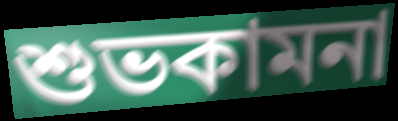
শুভকামনা